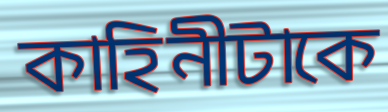
কাহিনীটাকে